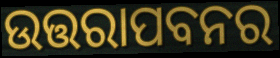
ଉତ୍ତରାପବନର